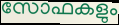
സോഫകളും